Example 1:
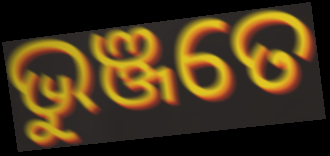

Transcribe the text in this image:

ଭୁଞ୍ଜତେ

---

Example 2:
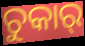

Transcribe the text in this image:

ଚୁକାର୍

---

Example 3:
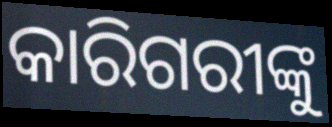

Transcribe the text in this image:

କାରିଗରୀଙ୍କୁ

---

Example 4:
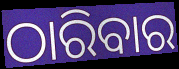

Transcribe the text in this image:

ଠାରିବାର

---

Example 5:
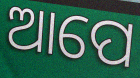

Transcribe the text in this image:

ଆପେ